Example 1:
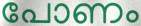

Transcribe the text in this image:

പോണം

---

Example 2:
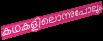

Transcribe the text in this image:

കഥകളിലൊന്നുപോലും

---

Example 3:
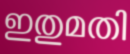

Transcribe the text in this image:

ഇതുമതി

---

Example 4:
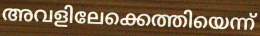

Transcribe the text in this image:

അവളിലേക്കെത്തിയെന്ന്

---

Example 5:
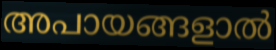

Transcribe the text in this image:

അപായങ്ങളാൽ